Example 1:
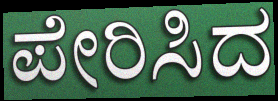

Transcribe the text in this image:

ಪೇರಿಸಿದ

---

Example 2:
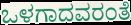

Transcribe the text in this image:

ಒಳಗಾದವರಂತೆ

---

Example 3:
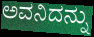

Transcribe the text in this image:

ಅವನಿದನ್ನು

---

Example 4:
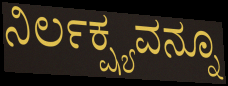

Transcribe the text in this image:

ನಿರ್ಲಕ್ಷ್ಯವನ್ನೂ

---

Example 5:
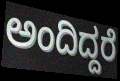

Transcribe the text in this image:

ಅಂದಿದ್ದರೆ